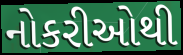
નોકરીઓથી